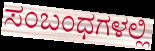
ಸಂಬಂಧಗಳಲ್ಲಿ